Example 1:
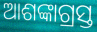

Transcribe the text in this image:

ଆଶଙ୍କାଗ୍ରସ୍ତ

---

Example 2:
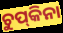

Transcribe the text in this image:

ଚୁପ୍‌କିନା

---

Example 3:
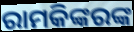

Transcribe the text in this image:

ରାମକିଙ୍କରଙ୍କ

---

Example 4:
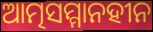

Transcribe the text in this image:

ଆତ୍ମସମ୍ମାନହୀନ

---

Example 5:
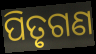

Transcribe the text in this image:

ପିତୃଗଣ